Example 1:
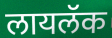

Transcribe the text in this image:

लायलॅक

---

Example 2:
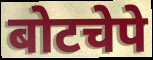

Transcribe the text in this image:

बोटचेपे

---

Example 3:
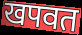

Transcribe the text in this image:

खपवत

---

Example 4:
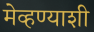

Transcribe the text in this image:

मेव्हण्याशी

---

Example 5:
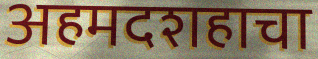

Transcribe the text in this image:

अहमदशहाचा